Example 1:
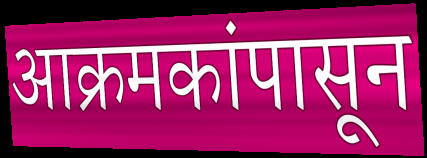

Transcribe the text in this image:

आक्रमकांपासून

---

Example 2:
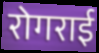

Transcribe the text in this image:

रोगराई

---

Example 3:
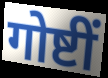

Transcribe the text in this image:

गोष्टीं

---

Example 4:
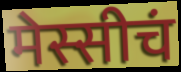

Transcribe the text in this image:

मेस्सीचं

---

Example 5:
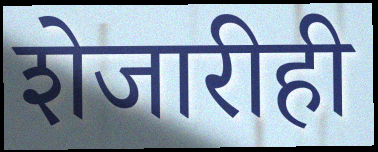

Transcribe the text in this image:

शेजारीही